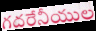
గదరేనీయుల